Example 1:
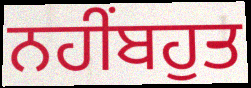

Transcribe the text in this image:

ਨਹੀਂਬਹੁਤ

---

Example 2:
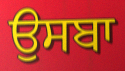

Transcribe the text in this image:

ਉਸਬਾ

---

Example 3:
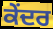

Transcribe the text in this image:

ਕੇੰਦਰ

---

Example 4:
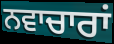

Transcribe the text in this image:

ਨਵਾਚਾਰਾਂ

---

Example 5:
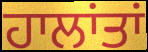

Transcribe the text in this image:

ਹਾਲਾਂਤਾਂ